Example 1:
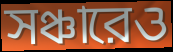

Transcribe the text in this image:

সঞ্চারেও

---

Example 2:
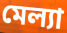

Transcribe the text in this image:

মেল্যা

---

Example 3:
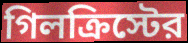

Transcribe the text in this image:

গিলক্রিস্টের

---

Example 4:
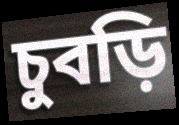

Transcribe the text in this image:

চুবড়ি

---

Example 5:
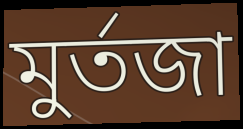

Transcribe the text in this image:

মুর্তজা